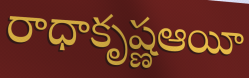
రాధాకృష్ణఆయీ